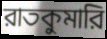
রাতকুমারি